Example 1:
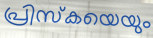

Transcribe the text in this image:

പ്രിസ്കയെയും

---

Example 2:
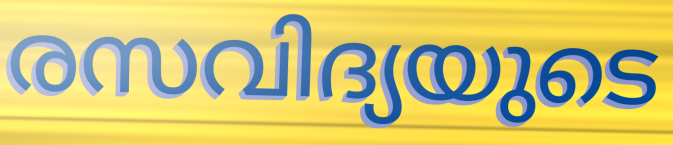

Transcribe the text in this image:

രസവിദ്യയുടെ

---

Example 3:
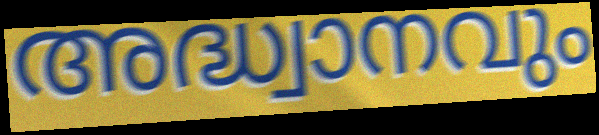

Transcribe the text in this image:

അദ്ധ്വാനവും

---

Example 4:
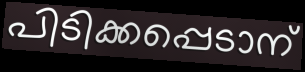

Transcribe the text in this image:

പിടിക്കപ്പെടാന്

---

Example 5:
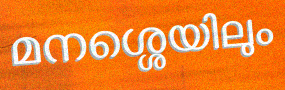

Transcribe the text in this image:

മനശ്ശെയിലും